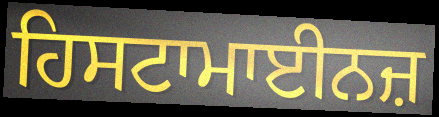
ਹਿਸਟਾਮਾਈਨਜ਼